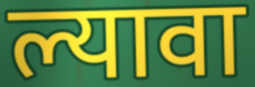
ल्यावा